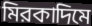
মিরকাদিমে